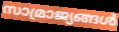
സാമ്രാജ്യങ്ങൾ